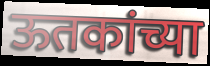
ऊतकांच्या